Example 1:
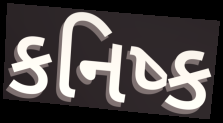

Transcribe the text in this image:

કનિષ્ક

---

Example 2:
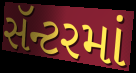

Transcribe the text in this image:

સૅન્ટરમાં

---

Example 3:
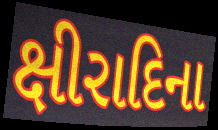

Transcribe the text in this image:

ક્ષીરાદિના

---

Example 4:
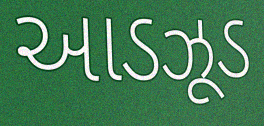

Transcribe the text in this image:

આડઝૂડ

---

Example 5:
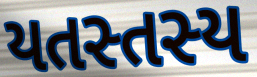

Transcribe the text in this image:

યતસ્તસ્ય